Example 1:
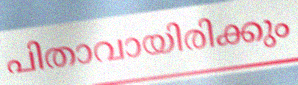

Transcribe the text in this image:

പിതാവായിരിക്കും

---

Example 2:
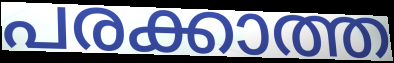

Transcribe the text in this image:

പരക്കാത്ത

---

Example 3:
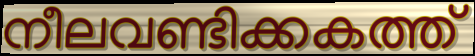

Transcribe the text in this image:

നീലവണ്ടിക്കകത്ത്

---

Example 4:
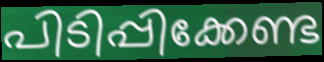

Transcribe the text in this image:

പിടിപ്പിക്കേണ്ട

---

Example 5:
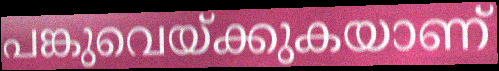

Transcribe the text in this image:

പങ്കുവെയ്ക്കുകയാണ്